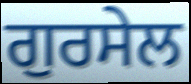
ਗੁਰਸੇਲ